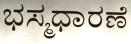
ಭಸ್ಮಧಾರಣೆ